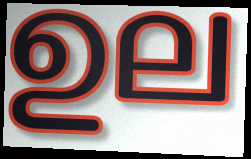
ഉല